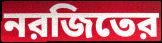
নরজিতের